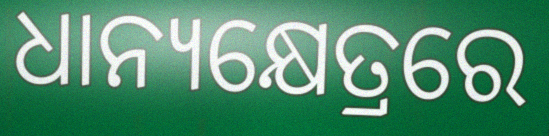
ଧାନ୍ୟକ୍ଷେତ୍ରରେ